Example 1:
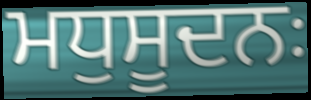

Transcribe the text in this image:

ਮਧੁਸੂਦਨਃ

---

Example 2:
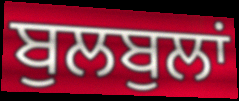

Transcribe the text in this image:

ਬੁਲਬੁਲਾਂ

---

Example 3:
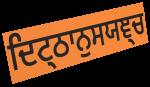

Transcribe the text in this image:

ਦਿਟ੍ਠਾਨੁਸਯਞ੍ਚ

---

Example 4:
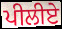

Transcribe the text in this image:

ਪੀਲੀਏ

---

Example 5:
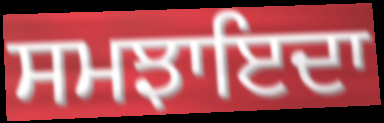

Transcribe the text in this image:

ਸਮਝਾਇਦਾ